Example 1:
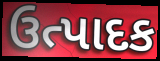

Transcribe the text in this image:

ઉત્પાદક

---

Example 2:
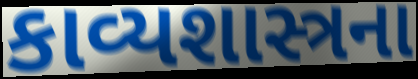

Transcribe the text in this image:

કાવ્યશાસ્ત્રના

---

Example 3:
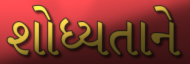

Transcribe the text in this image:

શોધ્યતાને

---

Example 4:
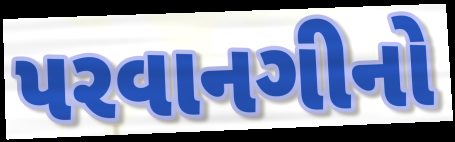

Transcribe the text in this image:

પરવાનગીનો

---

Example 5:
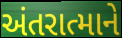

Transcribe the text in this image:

અંતરાત્માને